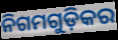
ନିଗମଗୁଡ଼ିକର